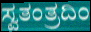
ಸ್ವತಂತ್ರದಿಂ